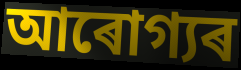
আৰোগ্যৰ